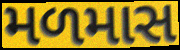
મળમાસ